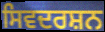
ਸਿਵਦਰਸ਼ਨ